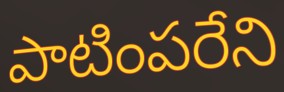
పాటింపరేని